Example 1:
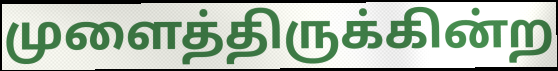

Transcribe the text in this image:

முளைத்திருக்கின்ற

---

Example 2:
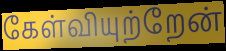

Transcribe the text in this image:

கேள்வியுற்றேன்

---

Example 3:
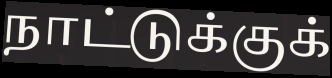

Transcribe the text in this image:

நாட்டுக்குக்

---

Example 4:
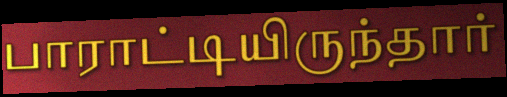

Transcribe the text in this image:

பாராட்டியிருந்தார்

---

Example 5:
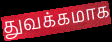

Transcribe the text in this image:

துவக்கமாக